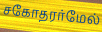
சகோதரர்மேல்